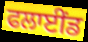
ਫਲਾਈਂਡ